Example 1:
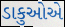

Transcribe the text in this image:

ડાકુઓએ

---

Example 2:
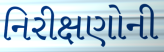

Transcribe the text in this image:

નિરીક્ષણોની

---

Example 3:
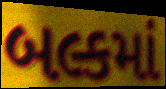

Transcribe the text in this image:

બલ્કમાં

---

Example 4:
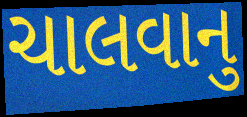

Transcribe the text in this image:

ચાલવાનુ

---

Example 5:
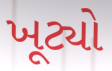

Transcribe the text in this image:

ખૂટ્યો